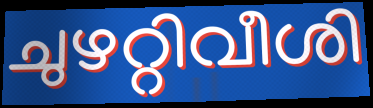
ചുഴറ്റിവീശി